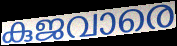
കുജവാരെ